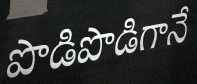
పొడిపొడిగానే